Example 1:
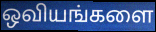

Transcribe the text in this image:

ஒவியங்களை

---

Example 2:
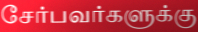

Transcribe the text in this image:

சேர்பவர்களுக்கு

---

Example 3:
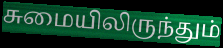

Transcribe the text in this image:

சுமையிலிருந்தும்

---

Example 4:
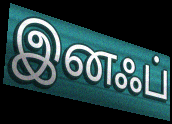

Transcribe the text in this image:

இனஃப்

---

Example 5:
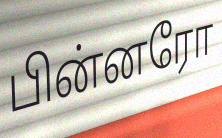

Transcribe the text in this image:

பின்னரோ